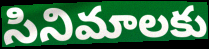
సినిమాలకు